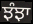
ਝੰਝਾ